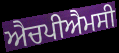
ਐਚਪੀਐਮਸੀ